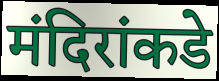
मंदिरांकडे